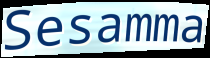
Sesamma